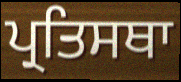
ਪ੍ਰਤਿਸਥਾ